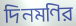
দিনমণির